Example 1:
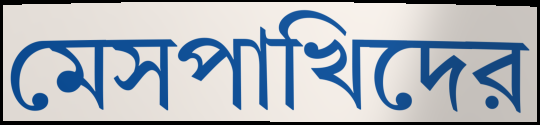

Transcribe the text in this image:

মেসপাখিদের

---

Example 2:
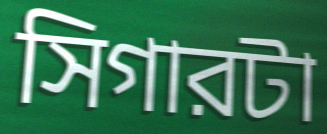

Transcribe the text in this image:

সিগারটা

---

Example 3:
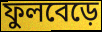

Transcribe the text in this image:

ফুলবেড়ে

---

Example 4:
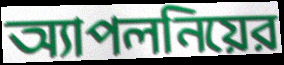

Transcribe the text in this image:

অ্যাপলনিয়ের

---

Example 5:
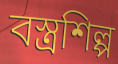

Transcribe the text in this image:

বস্ত্রশিল্প